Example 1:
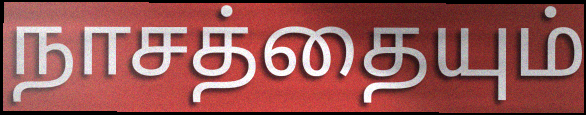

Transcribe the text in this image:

நாசத்தையும்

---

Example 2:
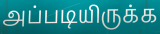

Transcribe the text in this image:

அப்படியிருக்க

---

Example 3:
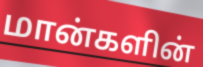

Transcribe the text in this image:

மான்களின்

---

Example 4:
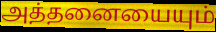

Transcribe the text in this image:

அத்தனையையும்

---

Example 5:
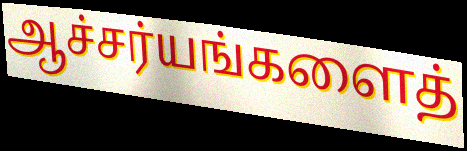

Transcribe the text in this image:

ஆச்சர்யங்களைத்